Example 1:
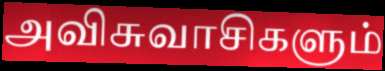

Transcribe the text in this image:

அவிசுவாசிகளும்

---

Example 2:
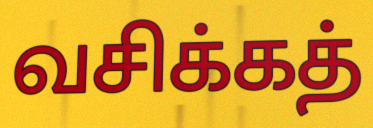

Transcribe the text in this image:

வசிக்கத்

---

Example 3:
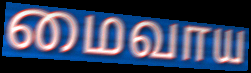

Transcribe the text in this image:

மைவாய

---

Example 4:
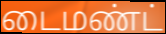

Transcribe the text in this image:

டைமண்ட்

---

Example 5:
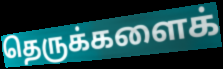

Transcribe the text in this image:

தெருக்களைக்